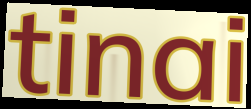
tinai